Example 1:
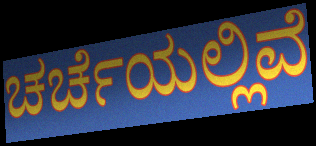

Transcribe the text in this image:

ಚರ್ಚೆಯಲ್ಲಿವೆ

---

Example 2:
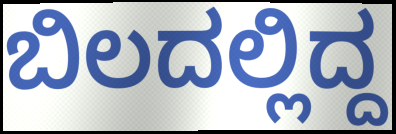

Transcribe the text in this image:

ಬಿಲದಲ್ಲಿದ್ದ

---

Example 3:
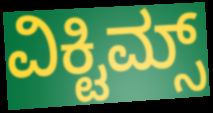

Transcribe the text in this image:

ವಿಕ್ಟಿಮ್ಸ್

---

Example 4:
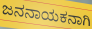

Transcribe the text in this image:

ಜನನಾಯಕನಾಗಿ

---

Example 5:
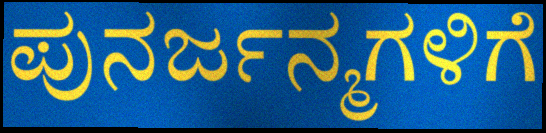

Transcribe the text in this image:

ಪುನರ್ಜನ್ಮಗಳಿಗೆ